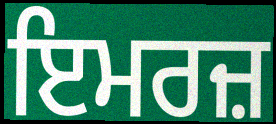
ਇਮਰਜ਼